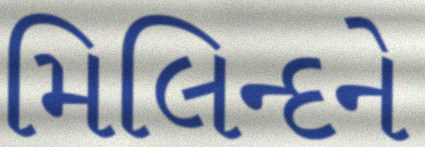
મિલિન્દને